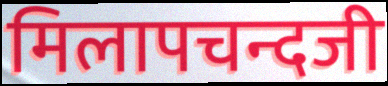
मिलापचन्दजी